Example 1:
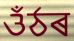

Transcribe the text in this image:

ওঁঠৰ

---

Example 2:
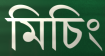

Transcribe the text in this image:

মিচিং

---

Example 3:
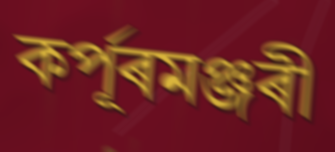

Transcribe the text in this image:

কৰ্পূৰমঞ্জৰী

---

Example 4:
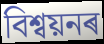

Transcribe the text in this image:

বিশ্বয়নৰ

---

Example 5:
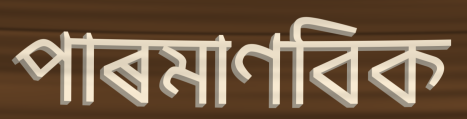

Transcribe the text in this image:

পাৰমাণবিক